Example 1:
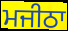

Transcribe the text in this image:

ਮਜੀਠਾ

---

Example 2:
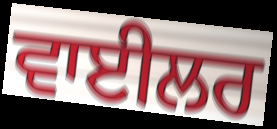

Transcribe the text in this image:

ਵਾਈਲਰ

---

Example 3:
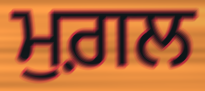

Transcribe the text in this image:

ਮੁਗ਼ਲ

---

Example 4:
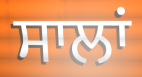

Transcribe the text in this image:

ਸਾਲਾਂ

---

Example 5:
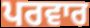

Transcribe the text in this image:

ਪਰਵਾਰ